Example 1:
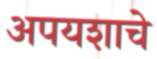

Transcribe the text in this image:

अपयशाचे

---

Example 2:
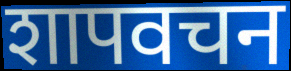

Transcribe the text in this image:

शापवचन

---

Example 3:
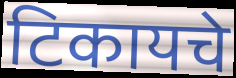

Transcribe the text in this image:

टिकायचे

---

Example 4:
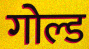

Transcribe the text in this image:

गोल्ड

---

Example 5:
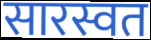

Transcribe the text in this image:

सारस्वत